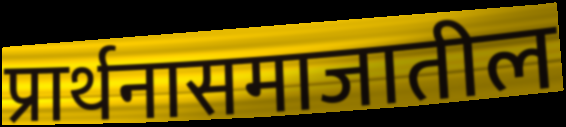
प्रार्थनासमाजातील